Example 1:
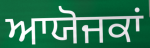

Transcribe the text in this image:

ਆਯੋਜਕਾਂ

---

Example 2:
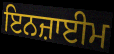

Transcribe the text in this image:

ਇਨਜ਼ਾਈਮ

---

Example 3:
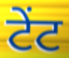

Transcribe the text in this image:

ਟੇਂਟ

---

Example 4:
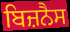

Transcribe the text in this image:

ਬਿਜ਼ਨੈਸ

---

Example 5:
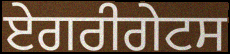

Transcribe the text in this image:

ਏਗਰੀਗੇਟਸ